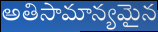
అతిసామాన్యమైన